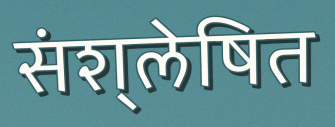
संश्लेषित